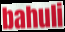
bahuli